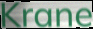
Krane